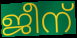
ജീന്